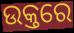
ଉକ୍ତରେ